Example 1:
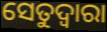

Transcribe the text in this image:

ସେତୁଦ୍ୱାରା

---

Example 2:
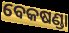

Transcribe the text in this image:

ବେକଷଣ୍ଡା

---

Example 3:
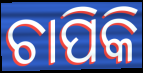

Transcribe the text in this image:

ଚାପିକି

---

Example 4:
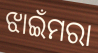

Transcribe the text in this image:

ଝାଇଁମରା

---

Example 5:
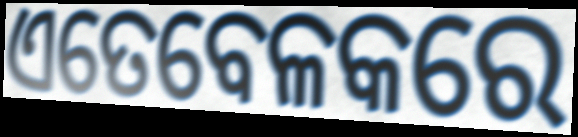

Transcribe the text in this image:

ଏତେବେଳକରେ